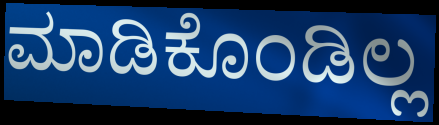
ಮಾಡಿಕೊಂಡಿಲ್ಲ